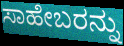
ಸಾಹೇಬರನ್ನು